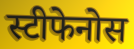
स्टीफेनोस